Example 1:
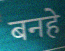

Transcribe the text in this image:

बनहे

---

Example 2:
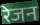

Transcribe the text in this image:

रेजन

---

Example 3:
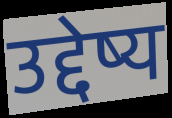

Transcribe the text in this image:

उद्देष्य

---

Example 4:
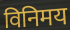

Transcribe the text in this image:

विनिमय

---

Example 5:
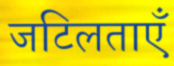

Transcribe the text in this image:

जटिलताएँ